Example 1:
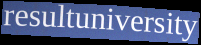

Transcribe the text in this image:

resultuniversity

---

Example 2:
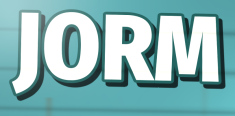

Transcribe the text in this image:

JORM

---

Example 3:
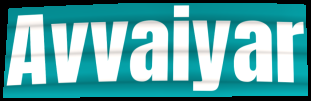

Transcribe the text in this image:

Avvaiyar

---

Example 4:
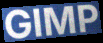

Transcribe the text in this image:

GIMP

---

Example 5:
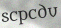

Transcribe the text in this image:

scpcdu